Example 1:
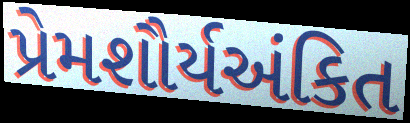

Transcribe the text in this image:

પ્રેમશૌર્યઅંકિત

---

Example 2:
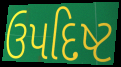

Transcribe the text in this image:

ઉપદિષ્ટ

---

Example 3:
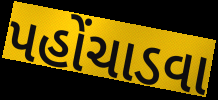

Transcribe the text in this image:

પહોંચાડવા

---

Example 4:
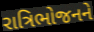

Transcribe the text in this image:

રાત્રિભોજનને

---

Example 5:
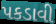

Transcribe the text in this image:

પકડાવી